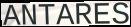
ANTARES